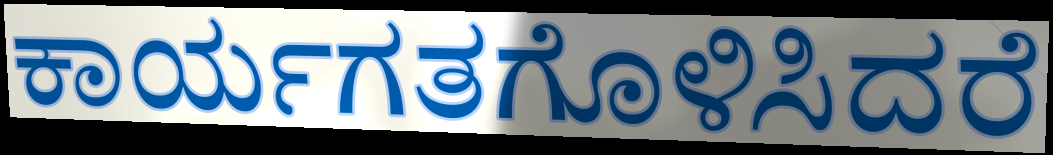
ಕಾರ್ಯಗತಗೊಳಿಸಿದರೆ